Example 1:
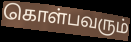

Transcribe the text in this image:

கொள்பவரும்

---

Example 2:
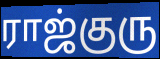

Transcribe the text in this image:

ராஜ்குரு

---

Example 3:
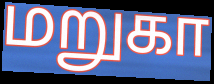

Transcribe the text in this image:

மறுகா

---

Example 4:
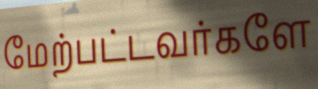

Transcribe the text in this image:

மேற்பட்டவர்களே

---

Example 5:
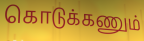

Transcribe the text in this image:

கொடுக்கணும்